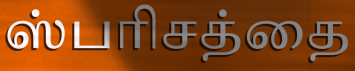
ஸ்பரிசத்தை